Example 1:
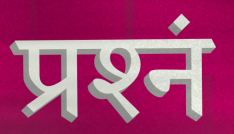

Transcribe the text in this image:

प्रश्‍नं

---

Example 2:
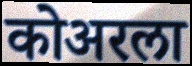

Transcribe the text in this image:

कोअरला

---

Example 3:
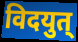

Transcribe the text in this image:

विदयुत्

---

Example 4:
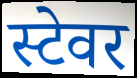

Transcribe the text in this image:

स्टेवर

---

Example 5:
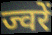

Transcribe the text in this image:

ज्वरें